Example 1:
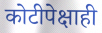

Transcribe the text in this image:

कोटीपेक्षाही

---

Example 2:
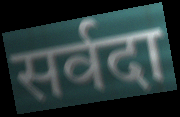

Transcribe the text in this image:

सर्वदा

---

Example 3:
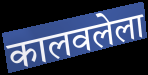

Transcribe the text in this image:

कालवलेला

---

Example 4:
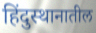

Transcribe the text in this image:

हिंदुस्थानातील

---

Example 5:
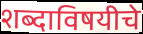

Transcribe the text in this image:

शब्दाविषयीचे